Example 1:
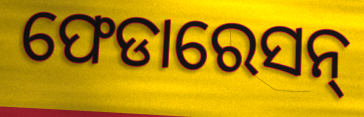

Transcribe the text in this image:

ଫେଡାରେସନ୍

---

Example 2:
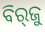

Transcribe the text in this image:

ବିର୍‌ଜୁ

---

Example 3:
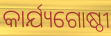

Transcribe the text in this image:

କାର୍ଯ୍ୟଗୋଷ୍ଠୀ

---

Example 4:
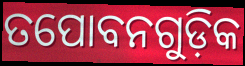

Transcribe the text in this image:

ତପୋବନଗୁଡ଼ିକ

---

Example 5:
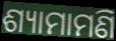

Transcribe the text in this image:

ଶ୍ୟାମାମଣି